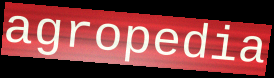
agropedia